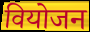
वियोजन